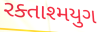
રક્તાશ્મયુગ